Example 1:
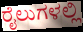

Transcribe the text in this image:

ರೈಲುಗಳಲ್ಲಿ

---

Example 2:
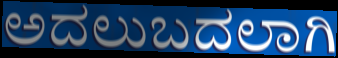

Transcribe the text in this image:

ಅದಲುಬದಲಾಗಿ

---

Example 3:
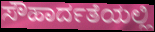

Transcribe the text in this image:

ಸೌಹಾರ್ದತೆಯಲ್ಲಿ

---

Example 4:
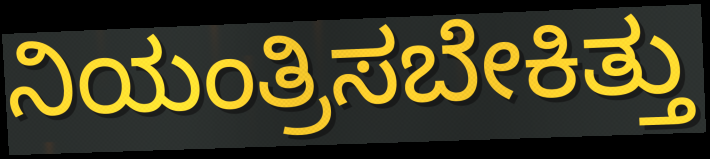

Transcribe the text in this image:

ನಿಯಂತ್ರಿಸಬೇಕಿತ್ತು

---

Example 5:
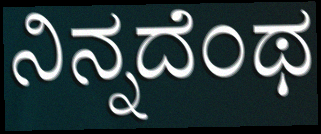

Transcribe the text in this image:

ನಿನ್ನದೆಂಥ